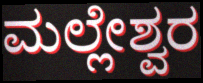
ಮಲ್ಲೇಶ್ವರ